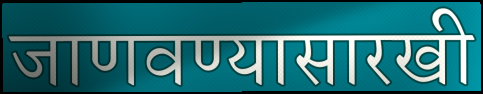
जाणवण्यासारखी